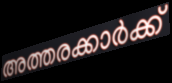
അത്തരക്കാർക്ക്